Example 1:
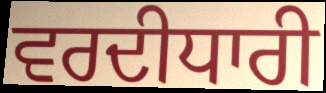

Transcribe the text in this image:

ਵਰਦੀਧਾਰੀ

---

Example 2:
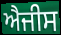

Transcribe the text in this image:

ਐਜੀਸ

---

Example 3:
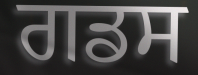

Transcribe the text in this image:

ਗਡਸ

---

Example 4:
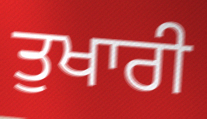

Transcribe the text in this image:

ਤੁਖਾਰੀ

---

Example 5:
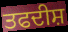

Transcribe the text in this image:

ਤਫਦੀਸ਼